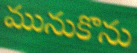
మునుకొను